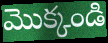
మొక్కండి